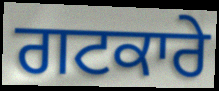
ਗਟਕਾਰੇ